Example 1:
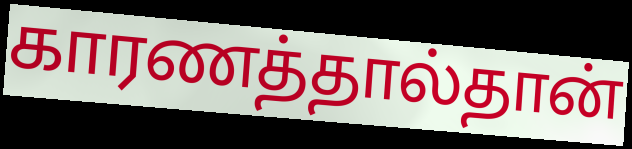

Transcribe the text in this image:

காரணத்தால்தான்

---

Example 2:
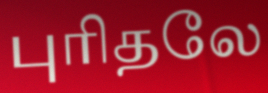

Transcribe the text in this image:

புரிதலே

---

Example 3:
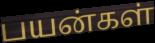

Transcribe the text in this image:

பயன்கள்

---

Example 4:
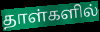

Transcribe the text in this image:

தாள்களில்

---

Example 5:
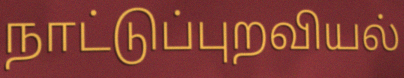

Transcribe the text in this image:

நாட்டுப்புறவியல்